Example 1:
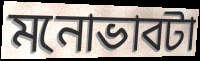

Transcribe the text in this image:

মনোভাবটা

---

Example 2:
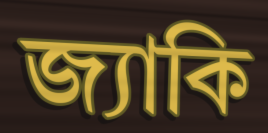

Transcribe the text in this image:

জ্যাকি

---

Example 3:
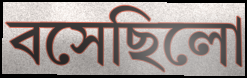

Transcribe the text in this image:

বসেছিলো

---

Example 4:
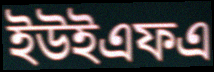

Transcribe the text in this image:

ইউইএফএ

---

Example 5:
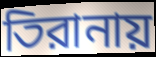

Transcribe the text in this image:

তিরানায়